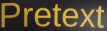
Pretext